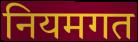
नियमगत